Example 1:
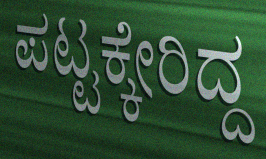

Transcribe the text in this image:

ಪಟ್ಟಕ್ಕೇರಿದ್ದ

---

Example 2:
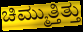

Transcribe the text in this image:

ಚಿಮ್ಮುತ್ತಿತ್ತು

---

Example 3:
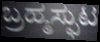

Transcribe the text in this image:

ಬ್ರಹ್ಮಸ್ಫುಟ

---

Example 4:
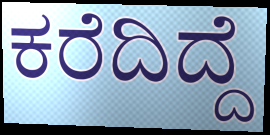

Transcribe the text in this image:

ಕರೆದಿದ್ದೆ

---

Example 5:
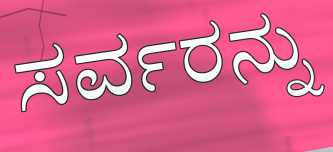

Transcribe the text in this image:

ಸರ್ವರನ್ನು